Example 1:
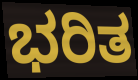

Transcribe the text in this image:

ಭರಿತ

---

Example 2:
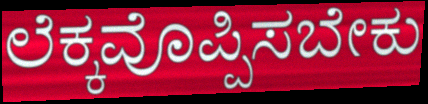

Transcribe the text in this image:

ಲೆಕ್ಕವೊಪ್ಪಿಸಬೇಕು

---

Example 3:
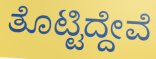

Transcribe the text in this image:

ತೊಟ್ಟಿದ್ದೇವೆ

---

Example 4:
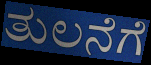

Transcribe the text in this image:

ತುಲನೆಗೆ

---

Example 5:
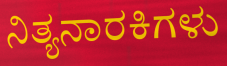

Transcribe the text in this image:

ನಿತ್ಯನಾರಕಿಗಳು